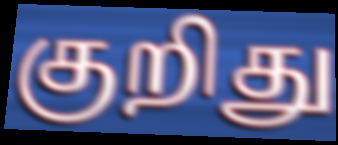
குறிது